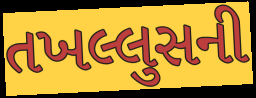
તખલ્લુસની